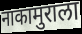
नाकामुराला